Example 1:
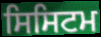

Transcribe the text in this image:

ਸਿਸਿਟਮ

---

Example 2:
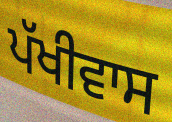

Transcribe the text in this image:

ਪੱਖੀਵਾਸ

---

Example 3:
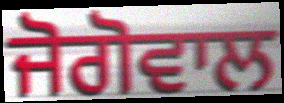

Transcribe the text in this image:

ਜੋਗੋਵਾਲ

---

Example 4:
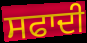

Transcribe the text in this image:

ਸਫਾਦੀ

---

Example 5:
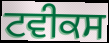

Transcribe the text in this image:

ਟਵੀਕਸ